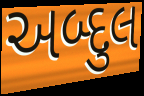
અબ્દુલ